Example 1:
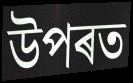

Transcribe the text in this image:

উপৰত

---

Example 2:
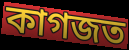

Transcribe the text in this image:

কাগজত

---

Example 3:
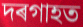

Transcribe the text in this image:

দৰগাহত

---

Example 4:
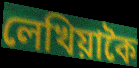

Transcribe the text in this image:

লেখিয়াকৈ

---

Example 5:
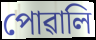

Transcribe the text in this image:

পোৱালি